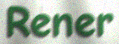
Rener